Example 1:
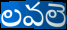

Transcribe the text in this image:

లవలె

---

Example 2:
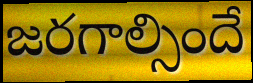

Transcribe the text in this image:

జరగాల్సిందే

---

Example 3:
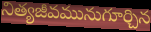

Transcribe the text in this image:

నిత్యజీవమునుగూర్చిన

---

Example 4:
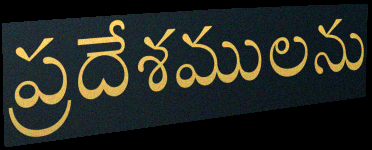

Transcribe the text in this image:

ప్రదేశములను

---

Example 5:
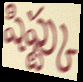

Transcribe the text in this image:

షిఫ్ట్కు